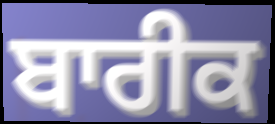
ਬਾਰੀਕ